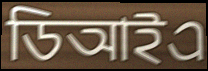
ডিআইএ